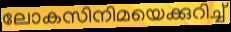
ലോകസിനിമയെക്കുറിച്ച്